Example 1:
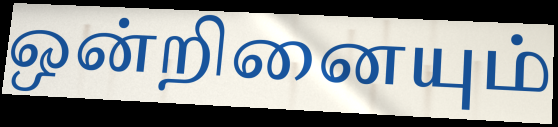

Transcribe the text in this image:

ஒன்றினையும்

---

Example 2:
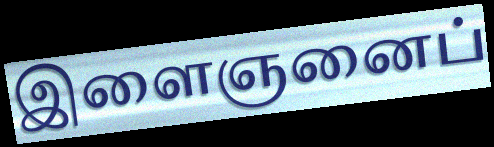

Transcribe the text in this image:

இளைஞனைப்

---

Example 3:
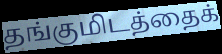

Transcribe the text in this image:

தங்குமிடத்தைக்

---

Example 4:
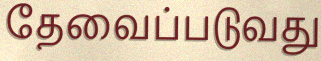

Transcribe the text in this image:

தேவைப்படுவது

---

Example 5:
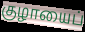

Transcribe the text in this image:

குழாயைப்